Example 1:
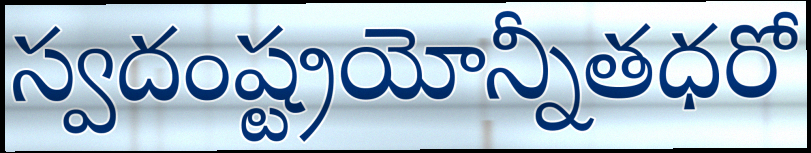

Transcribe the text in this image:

స్వదంష్ట్రయోన్నీతధరో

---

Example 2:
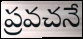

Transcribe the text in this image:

ప్రవచనే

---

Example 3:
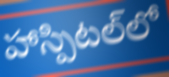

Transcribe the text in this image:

హాస్పిటల్‌లో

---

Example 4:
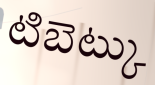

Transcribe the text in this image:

టిబెట్కు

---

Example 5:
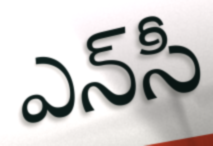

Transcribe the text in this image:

ఎన్‌సీ